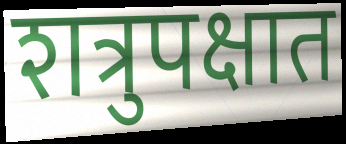
शत्रुपक्षात